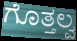
ಗೊತ್ತಲ್ವ